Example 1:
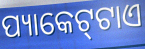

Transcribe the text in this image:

ପ୍ୟାକେଟ୍‌ଟାଏ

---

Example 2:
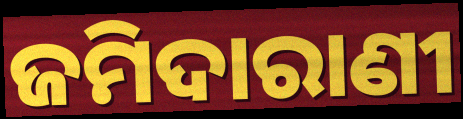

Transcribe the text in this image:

ଜମିଦାରାଣୀ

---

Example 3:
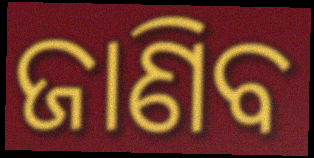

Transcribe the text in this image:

ଜାଣିବ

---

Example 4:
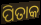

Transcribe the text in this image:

ପିତାକ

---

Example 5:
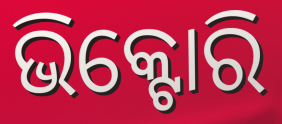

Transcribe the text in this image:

ଭିକ୍ଟୋରି